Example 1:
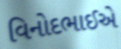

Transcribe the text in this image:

વિનોદભાઈએ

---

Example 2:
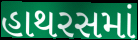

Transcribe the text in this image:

હાથરસમાં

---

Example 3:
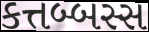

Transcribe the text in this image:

કત્તબ્બસ્સ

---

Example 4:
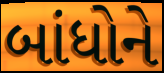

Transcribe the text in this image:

બાંધોને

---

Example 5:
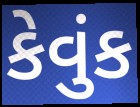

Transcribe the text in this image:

કેવુંક